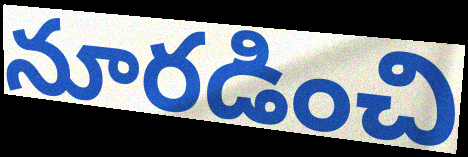
నూరడించి